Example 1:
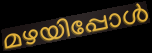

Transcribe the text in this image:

മഴയിപ്പോൾ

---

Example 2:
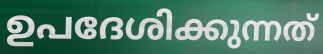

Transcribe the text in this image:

ഉപദേശിക്കുന്നത്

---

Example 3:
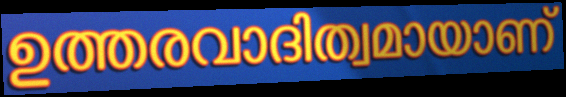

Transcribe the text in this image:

ഉത്തരവാദിത്വമായാണ്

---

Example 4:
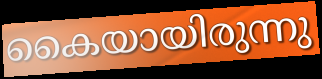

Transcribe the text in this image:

കൈയായിരുന്നു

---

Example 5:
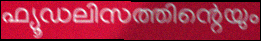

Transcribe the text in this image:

ഫ്യൂഡലിസത്തിന്റെയും